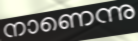
നാണെന്നു